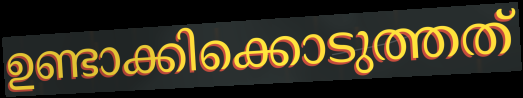
ഉണ്ടാക്കിക്കൊടുത്തത്